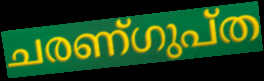
ചരണ്ഗുപ്ത